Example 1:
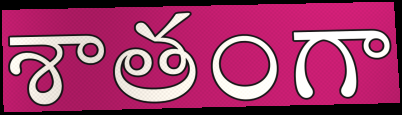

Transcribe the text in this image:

శాతంగా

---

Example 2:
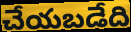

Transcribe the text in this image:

చేయబడేది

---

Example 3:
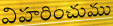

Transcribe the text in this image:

విహరించుము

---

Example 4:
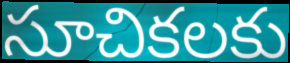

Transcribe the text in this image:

సూచికలకు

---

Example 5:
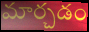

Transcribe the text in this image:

మార్చడం